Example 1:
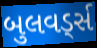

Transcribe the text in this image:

બુલવર્ડ્સ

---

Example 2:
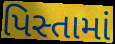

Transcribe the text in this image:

પિસ્તામાં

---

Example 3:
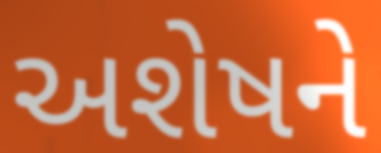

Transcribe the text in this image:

અશેષને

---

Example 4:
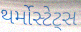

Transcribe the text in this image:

થર્મોસ્ટેટ્સ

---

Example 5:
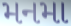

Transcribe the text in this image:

મનમા